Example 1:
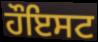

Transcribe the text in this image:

ਹੌਇਸਟ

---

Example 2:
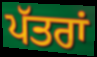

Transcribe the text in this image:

ਪੱਤਰਾਂ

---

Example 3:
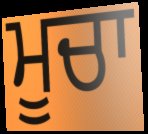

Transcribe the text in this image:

ਮੂਚਾ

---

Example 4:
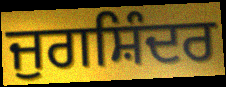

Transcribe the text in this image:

ਜੁਗਸ਼ਿੰਦਰ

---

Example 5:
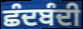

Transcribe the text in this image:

ਛੰਦਬੰਦੀ